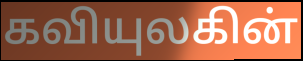
கவியுலகின்